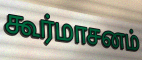
கூர்மாசனம்